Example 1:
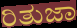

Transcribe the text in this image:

ರಿತುಜಾ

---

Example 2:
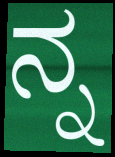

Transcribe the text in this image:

ನ್ನ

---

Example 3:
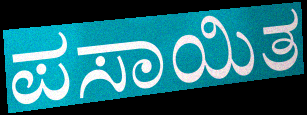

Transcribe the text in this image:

ಪಸಾಯಿತ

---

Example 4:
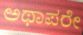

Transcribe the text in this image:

ಅಥಾಪರೇ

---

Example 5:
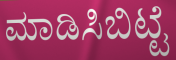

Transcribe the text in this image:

ಮಾಡಿಸಿಬಿಟ್ಟೆ